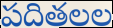
పదితలల